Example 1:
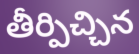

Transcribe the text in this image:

తీర్పిచ్చిన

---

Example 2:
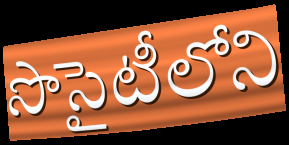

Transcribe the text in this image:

సొసైటీలోని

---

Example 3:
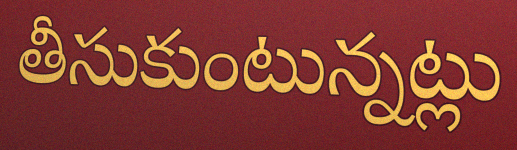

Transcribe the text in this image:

తీసుకుంటున్నట్లు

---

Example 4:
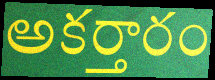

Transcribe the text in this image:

అకర్తారం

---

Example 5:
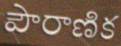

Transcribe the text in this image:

పౌరాణిక